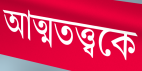
আত্মতত্ত্বকে